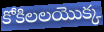
కోకిలలయొక్క